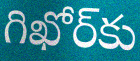
గిఖోర్‌కు